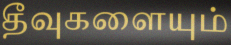
தீவுகளையும்